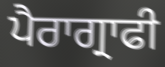
ਪੈਰਾਗ੍ਰਾਫੀ